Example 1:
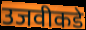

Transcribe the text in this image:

उजवीकडे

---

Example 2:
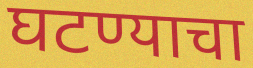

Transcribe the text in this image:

घटण्याचा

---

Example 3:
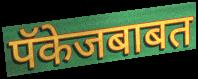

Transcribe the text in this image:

पॅकेजबाबत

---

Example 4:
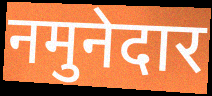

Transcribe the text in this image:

नमुनेदार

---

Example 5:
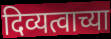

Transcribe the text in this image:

दिव्यत्वाच्या